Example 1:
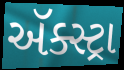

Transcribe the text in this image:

ઍક્સ્ટ્રા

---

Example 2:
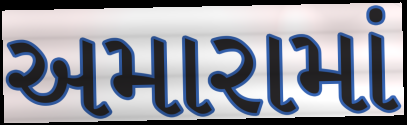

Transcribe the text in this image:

અમારામાં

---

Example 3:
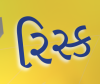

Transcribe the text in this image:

રિસ્ક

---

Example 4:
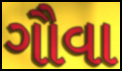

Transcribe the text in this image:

ગૌવા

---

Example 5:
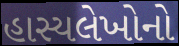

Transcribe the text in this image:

હાસ્યલેખોનો